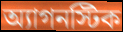
অ্যাগনস্টিক